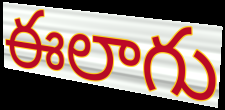
ఈలాగు